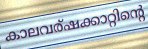
കാലവര്ഷക്കാറ്റിന്റെ